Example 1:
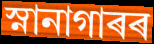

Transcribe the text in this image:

স্নানাগাৰৰ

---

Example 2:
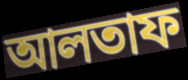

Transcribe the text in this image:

আলতাফ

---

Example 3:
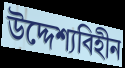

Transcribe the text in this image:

উদ্দেশ্যবিহীন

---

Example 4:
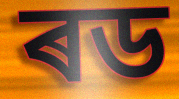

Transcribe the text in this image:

ৰড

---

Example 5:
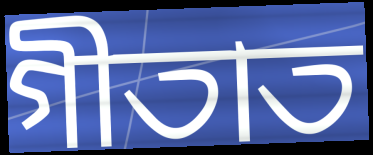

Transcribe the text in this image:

গীতাত